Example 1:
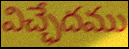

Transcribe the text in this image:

విచ్ఛేదము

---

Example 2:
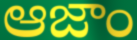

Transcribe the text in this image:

ఆజాం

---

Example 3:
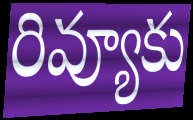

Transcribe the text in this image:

రివ్యూకు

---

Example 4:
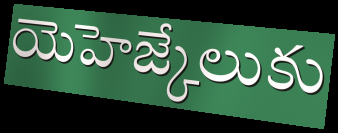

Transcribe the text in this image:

యెహెజ్కేలుకు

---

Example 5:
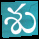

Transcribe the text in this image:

శు